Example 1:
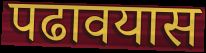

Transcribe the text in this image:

पढावयास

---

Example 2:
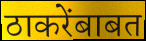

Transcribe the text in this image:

ठाकरेंबाबत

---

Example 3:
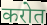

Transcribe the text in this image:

करोत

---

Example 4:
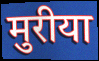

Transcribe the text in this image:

मुरीया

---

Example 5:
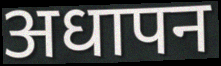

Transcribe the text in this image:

अधापन